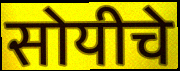
सोयीचे